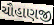
ચૌહાણજી